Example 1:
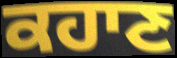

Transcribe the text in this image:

ਕਹਾਣ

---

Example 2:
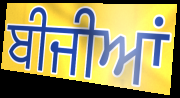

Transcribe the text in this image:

ਬੀਜੀਆਂ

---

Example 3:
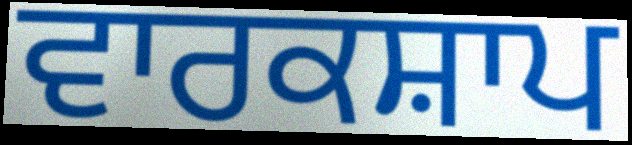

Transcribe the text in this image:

ਵਾਰਕਸ਼ਾਪ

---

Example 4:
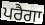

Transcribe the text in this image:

ਪਰੈਗਾ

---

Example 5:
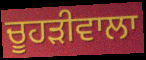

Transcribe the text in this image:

ਚੂਹੜੀਵਾਲਾ